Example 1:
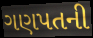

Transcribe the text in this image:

ગણપતની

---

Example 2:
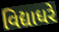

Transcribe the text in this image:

વિદ્યાધરે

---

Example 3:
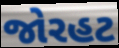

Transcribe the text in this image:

જોરહટ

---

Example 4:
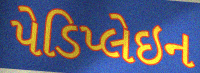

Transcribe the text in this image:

પેડિપ્લેઇન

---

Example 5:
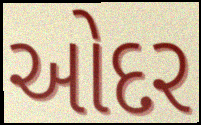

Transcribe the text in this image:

ઓદર